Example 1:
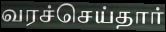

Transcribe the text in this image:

வரச்செய்தார்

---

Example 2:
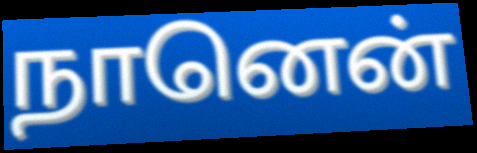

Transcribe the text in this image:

நானென்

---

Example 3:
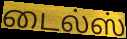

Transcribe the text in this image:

டைல்ஸ்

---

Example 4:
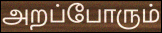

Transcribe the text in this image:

அறப்போரும்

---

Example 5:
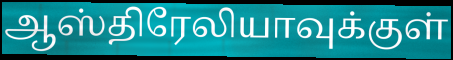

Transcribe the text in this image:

ஆஸ்திரேலியாவுக்குள்